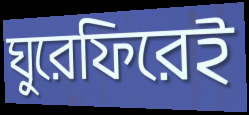
ঘুরেফিরেই